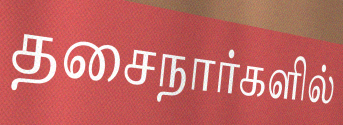
தசைநார்களில்